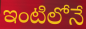
ఇంటిలోనే